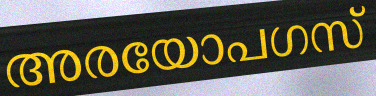
അരയോപഗസ്